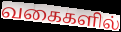
வகைகளில்